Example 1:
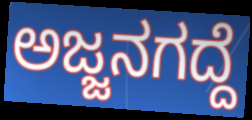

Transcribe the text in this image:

ಅಜ್ಜನಗದ್ದೆ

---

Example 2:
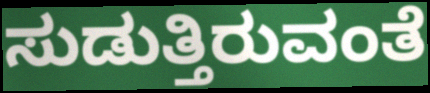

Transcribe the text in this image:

ಸುಡುತ್ತಿರುವಂತೆ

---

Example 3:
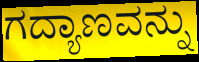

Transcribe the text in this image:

ಗದ್ಯಾಣವನ್ನು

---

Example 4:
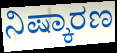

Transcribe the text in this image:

ನಿಷ್ಕಾರಣ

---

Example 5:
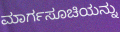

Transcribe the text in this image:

ಮಾರ್ಗಸೂಚಿಯನ್ನು